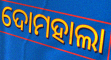
ଦୋମହାଲା